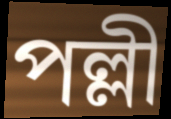
পল্লী